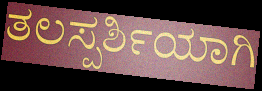
ತಲಸ್ಪರ್ಶಿಯಾಗಿ